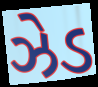
ઝેડ